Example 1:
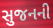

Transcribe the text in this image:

સુજનની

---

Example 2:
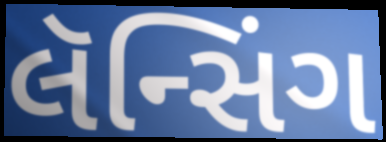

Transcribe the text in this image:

લૅન્સિંગ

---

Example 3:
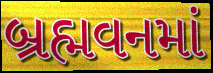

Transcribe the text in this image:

બ્રહ્મવનમાં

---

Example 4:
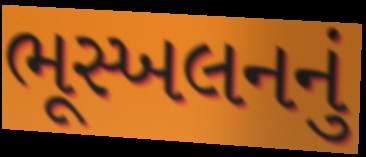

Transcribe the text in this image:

ભૂસ્ખલનનું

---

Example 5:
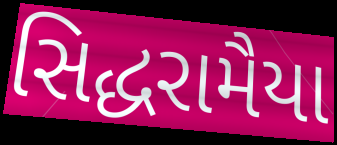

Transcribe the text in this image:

સિદ્ધરામૈયા